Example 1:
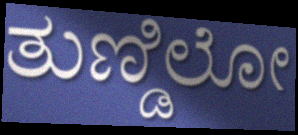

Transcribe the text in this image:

ತುಣ್ಡಿಲೋ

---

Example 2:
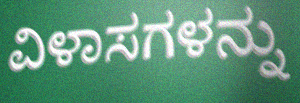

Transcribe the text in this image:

ವಿಳಾಸಗಳನ್ನು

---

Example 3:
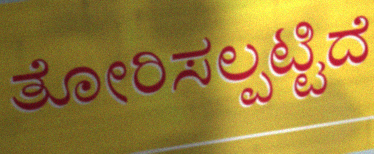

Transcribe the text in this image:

ತೋರಿಸಲ್ಪಟ್ಟಿದೆ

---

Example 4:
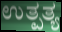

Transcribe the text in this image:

ಉತ್ಪತ್ಯ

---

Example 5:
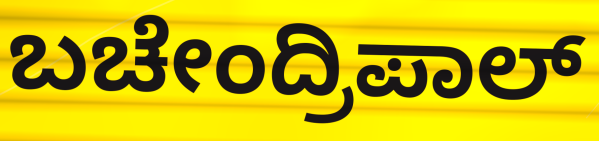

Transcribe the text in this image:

ಬಚೇಂದ್ರಿಪಾಲ್